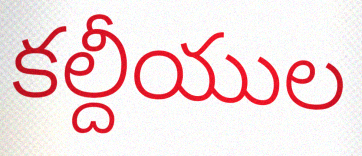
కల్దీయుల